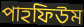
পাহফিউম